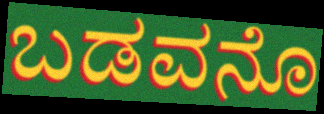
ಬಡವನೊ